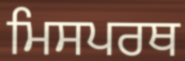
ਮਿਸਪਰਥ